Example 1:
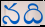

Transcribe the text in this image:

నది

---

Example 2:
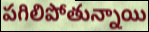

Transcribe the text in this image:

పగిలిపోతున్నాయి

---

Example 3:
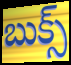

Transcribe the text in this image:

బుక్స్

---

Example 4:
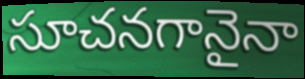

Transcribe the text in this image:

సూచనగానైనా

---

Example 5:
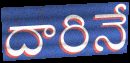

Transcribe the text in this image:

దారినే